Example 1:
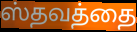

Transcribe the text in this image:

ஸ்தவத்தை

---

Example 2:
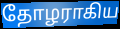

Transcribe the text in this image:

தோழராகிய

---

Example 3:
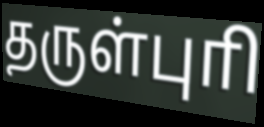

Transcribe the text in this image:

தருள்புரி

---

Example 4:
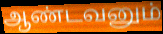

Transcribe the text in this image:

ஆண்டவனும்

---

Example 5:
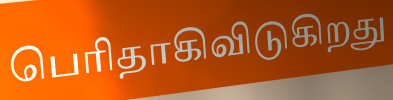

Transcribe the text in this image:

பெரிதாகிவிடுகிறது